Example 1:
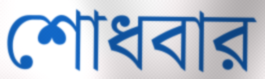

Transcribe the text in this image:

শোধবার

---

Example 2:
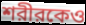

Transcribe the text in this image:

শরীরকেও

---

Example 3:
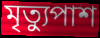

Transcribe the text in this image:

মৃত্যুপাশ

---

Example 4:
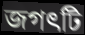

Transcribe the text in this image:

জগৎটি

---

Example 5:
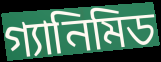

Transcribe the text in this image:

গ্যানিমিড